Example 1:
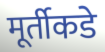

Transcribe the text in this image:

मूर्तीकडे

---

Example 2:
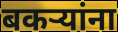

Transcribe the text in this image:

बकर्‍यांना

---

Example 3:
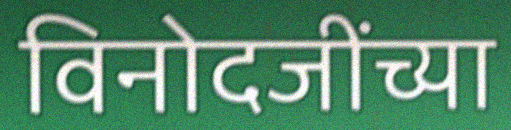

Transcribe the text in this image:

विनोदजींच्या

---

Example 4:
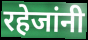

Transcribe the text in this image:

रहेजांनी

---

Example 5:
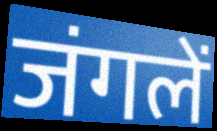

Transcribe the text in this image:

जंगलें